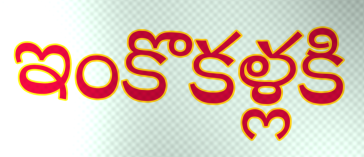
ఇంకొకళ్లకి